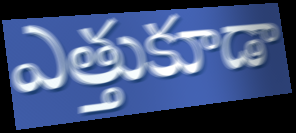
ఎత్తుకూడా